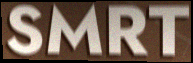
SMRT